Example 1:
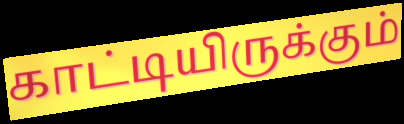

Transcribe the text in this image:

காட்டியிருக்கும்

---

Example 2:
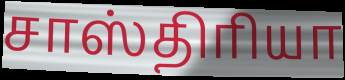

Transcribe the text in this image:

சாஸ்திரியா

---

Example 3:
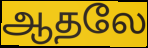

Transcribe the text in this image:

ஆதலே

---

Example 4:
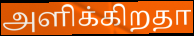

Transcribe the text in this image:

அளிக்கிறதா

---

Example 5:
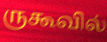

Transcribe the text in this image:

ருகூவில்